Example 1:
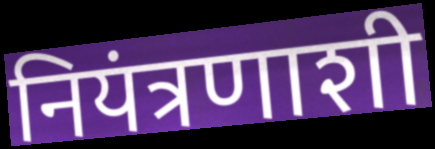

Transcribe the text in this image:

नियंत्रणाशी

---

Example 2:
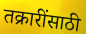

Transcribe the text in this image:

तक्रारींसाठी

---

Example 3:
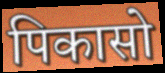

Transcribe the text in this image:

पिकासो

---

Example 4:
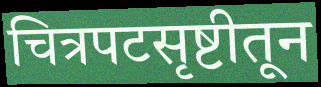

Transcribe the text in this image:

चित्रपटसृष्टीतून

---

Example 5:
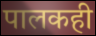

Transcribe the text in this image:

पालकही